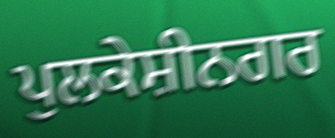
ਪੁਲਕੇਸ਼ੀਨਗਰ